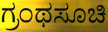
ಗ್ರಂಥಸೂಚಿ